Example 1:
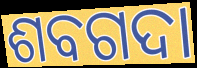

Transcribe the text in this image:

ଶବଗଦା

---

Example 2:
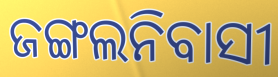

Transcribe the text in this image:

ଜଙ୍ଗଲନିବାସୀ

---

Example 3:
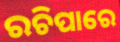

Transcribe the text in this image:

ରଚିପାରେ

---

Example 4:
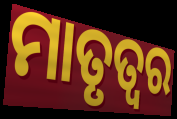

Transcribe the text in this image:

ମାତୃତ୍ୱର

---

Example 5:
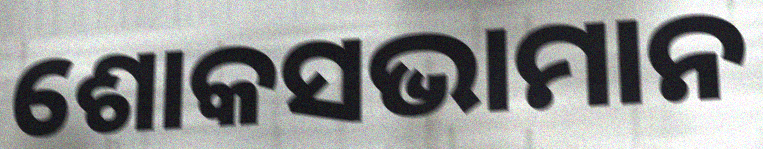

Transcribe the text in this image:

ଶୋକସଭାମାନ